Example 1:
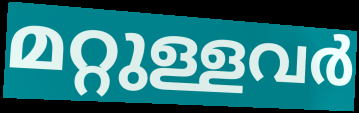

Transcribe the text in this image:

മറ്റുള്ളവർ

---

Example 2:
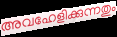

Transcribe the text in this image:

അവഹേളിക്കുന്നതും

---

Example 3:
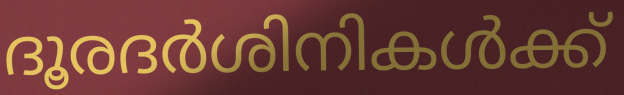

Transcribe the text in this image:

ദൂരദർശിനികൾക്ക്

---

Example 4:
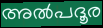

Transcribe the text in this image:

അൽപദൂര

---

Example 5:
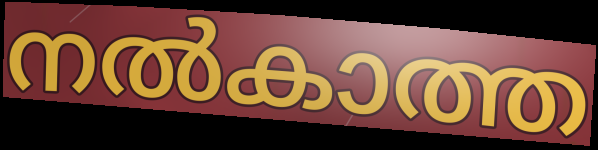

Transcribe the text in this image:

നൽകാത്ത